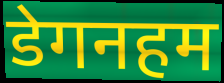
डेगनहम